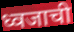
ध्वजाची